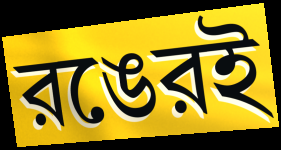
রঙেরই